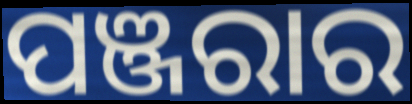
ପଞ୍ଜରାର